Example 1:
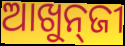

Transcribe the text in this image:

ଆଖୁନ୍‍ଜୀ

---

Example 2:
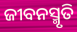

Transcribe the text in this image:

ଜୀବନସ୍ମୃତି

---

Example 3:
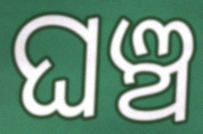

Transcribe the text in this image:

ଘଞ୍ଚ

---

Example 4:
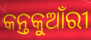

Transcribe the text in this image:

କନ୍ତକୁଆଁରୀ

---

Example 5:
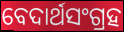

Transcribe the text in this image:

ବେଦାର୍ଥସଂଗ୍ରହ